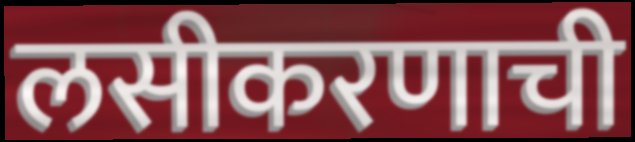
लसीकरणाची